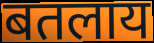
बतलाय